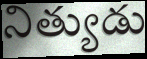
నిత్యుడు